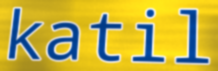
katil